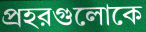
প্রহরগুলোকে